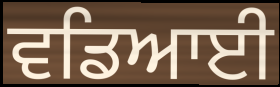
ਵਡਿਆਈ